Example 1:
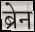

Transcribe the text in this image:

ब्रेन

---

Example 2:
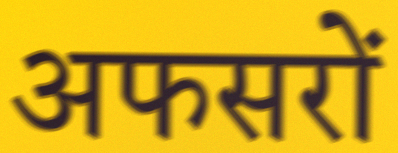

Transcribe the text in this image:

अफसरों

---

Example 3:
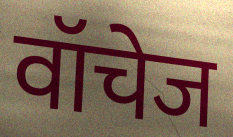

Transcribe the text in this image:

वॉचेज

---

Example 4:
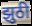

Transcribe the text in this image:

झुठी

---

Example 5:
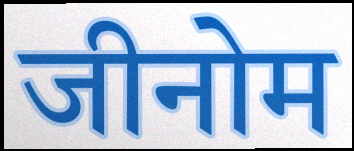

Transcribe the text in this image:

जीनोम